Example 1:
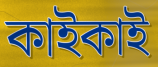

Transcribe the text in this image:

কাইকাই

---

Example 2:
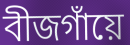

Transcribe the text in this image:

বীজগাঁয়ে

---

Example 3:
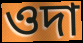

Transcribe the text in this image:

ওদা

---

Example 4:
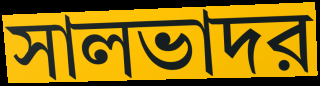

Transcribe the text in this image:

সালভাদর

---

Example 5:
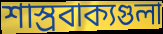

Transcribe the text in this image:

শাস্ত্রবাক্যগুলা